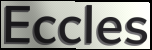
Eccles